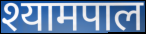
श्यामपाल